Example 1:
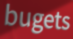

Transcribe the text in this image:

bugets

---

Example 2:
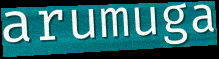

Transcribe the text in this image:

arumuga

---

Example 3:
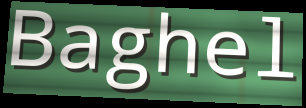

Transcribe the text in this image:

Baghel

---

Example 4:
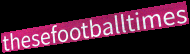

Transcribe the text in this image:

thesefootballtimes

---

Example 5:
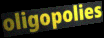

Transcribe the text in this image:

oligopolies